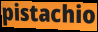
pistachio